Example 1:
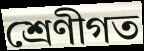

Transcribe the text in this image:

শ্ৰেণীগত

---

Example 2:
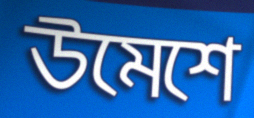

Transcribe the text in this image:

উমেশে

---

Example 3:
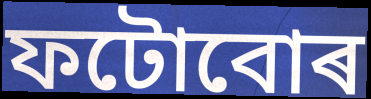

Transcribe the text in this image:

ফটোবোৰ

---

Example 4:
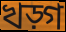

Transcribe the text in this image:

খড়্গ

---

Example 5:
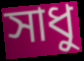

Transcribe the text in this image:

সাধু